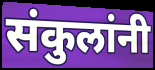
संकुलांनी